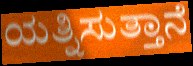
ಯತ್ನಿಸುತ್ತಾನೆ